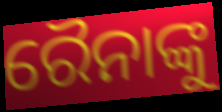
ରୈନାଙ୍କୁ